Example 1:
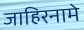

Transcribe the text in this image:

जाहिरनामे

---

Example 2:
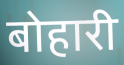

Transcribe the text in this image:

बोहारी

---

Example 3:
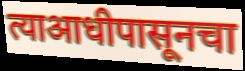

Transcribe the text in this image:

त्याआधीपासूनचा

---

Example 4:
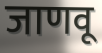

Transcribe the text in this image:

जाणवू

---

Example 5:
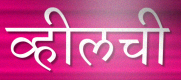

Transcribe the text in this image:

व्हीलची